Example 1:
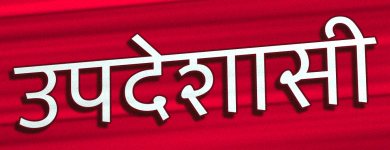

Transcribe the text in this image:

उपदेशासी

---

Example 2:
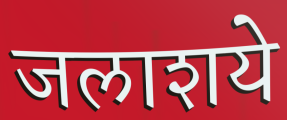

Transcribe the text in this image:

जलाशये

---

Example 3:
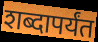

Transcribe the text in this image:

शब्दापर्यंत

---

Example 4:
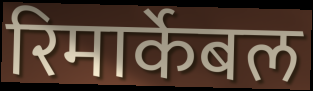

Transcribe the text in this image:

रिमार्केबल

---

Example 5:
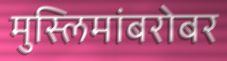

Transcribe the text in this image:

मुस्लिमांबरोबर